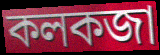
কলকজা